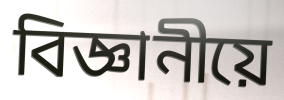
বিজ্ঞানীয়ে